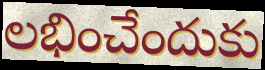
లభించేందుకు